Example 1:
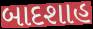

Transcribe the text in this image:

બાદશાહ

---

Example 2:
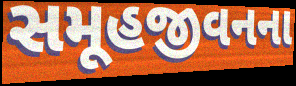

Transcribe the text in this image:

સમૂહજીવનના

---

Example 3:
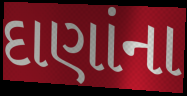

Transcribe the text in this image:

દાણાંના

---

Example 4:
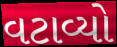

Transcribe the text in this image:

વટાવ્યો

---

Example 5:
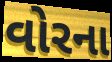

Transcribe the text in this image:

વોરના